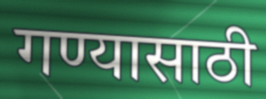
गण्यासाठी